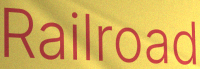
Railroad